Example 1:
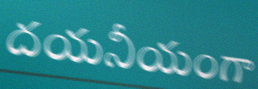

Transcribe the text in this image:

దయనీయంగా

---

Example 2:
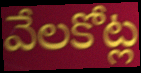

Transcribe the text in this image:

వేలకోట్ల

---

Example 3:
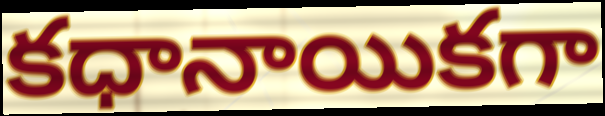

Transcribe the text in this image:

కధానాయికగా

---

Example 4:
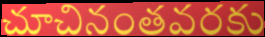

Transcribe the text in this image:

చూచినంతవరకు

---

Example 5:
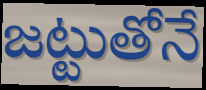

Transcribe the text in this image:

జట్టుతోనే